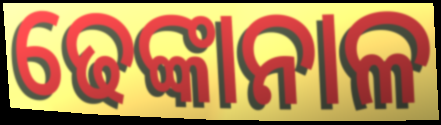
ଢେଙ୍କାନାଳ